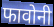
फावोनी